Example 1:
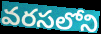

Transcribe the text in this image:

వరసలోని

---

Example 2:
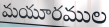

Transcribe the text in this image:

మయూరముల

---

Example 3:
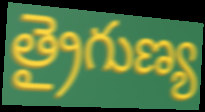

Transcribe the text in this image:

త్రైగుణ్య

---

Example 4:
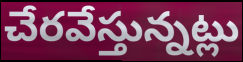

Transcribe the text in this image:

చేరవేస్తున్నట్లు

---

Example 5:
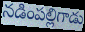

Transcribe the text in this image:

నడింపల్లిగాడు